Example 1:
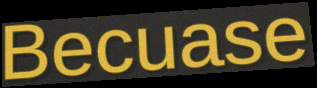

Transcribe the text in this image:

Becuase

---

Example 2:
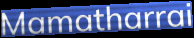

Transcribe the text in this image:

Mamatharrai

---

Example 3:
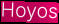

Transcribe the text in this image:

Hoyos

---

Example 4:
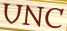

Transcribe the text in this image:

UNC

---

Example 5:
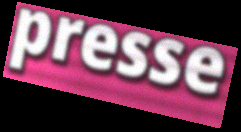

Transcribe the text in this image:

presse